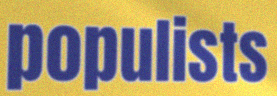
populists